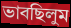
ভাবছিলুম